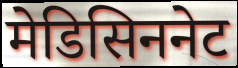
मेडिसिननेट